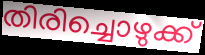
തിരിച്ചൊഴുക്ക്